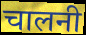
चालनी